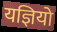
यज्ञियो